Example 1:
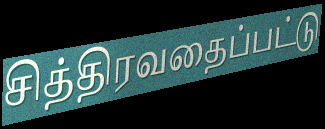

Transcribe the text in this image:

சித்திரவதைப்பட்டு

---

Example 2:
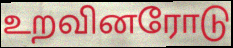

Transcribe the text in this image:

உறவினரோடு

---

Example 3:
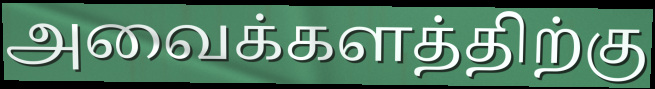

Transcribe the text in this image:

அவைக்களத்திற்கு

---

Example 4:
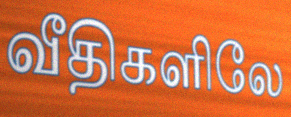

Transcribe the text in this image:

வீதிகளிலே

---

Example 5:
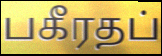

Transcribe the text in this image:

பகீரதப்